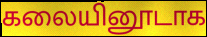
கலையினூடாக